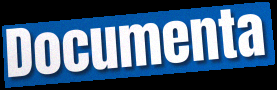
Documenta